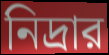
নিদ্রার